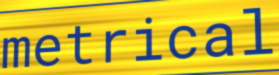
metrical